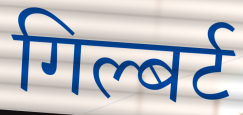
गिल्बर्ट